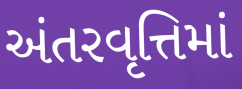
અંતરવૃત્તિમાં